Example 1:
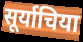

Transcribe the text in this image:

सूर्याचिया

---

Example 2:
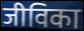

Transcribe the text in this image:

जीविका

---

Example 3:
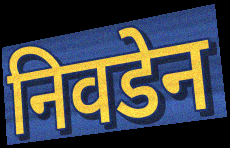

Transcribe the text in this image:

निवडेन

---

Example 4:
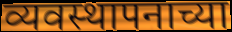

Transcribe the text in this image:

व्यवस्थापनाच्या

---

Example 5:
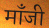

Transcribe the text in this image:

मॉंजी